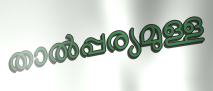
താൽപ്പര്യമുള്ള